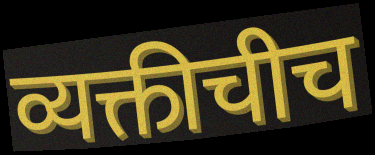
व्यक्तीचीच